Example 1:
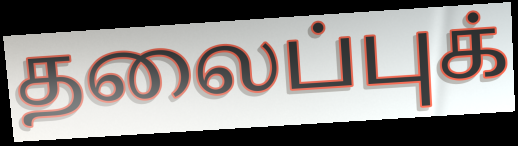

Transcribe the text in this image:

தலைப்புக்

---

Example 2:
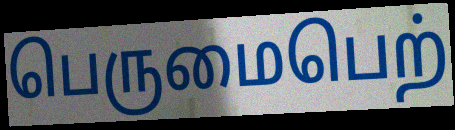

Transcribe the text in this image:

பெருமைபெற்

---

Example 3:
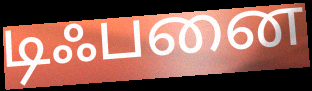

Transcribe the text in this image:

டிஃபனை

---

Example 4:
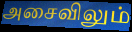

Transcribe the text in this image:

அசைவிலும்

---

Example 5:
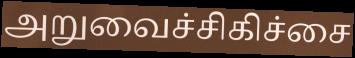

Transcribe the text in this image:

அறுவைச்சிகிச்சை